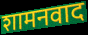
शामनवाद